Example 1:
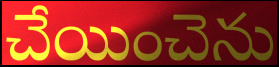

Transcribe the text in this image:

చేయించెను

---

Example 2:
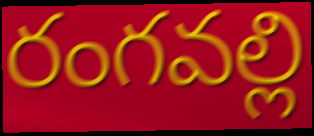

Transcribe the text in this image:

రంగవల్లి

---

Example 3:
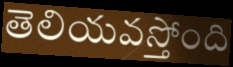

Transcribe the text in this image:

తెలియవస్తోంది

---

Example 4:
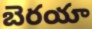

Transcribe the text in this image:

బెరయా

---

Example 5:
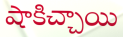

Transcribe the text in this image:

షాకిచ్చాయి